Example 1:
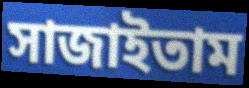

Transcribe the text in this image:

সাজাইতাম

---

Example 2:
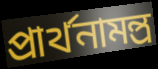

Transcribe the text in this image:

প্রার্থনামন্ত্র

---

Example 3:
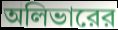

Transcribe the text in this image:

অলিভারের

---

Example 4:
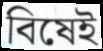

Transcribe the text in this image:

বিষেই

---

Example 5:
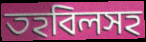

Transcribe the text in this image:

তহবিলসহ